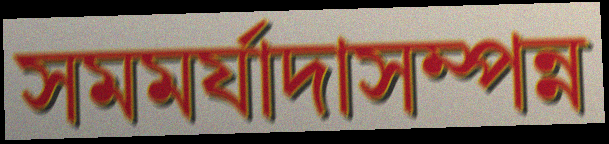
সমমর্যাদাসম্পন্ন